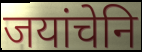
जयांचेनि